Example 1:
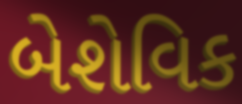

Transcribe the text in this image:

બેશેવિક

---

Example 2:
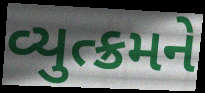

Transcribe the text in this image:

વ્યુત્ક્રમને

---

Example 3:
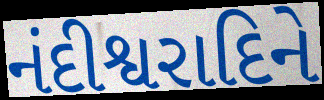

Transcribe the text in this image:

નંદીશ્વરાદિને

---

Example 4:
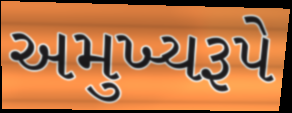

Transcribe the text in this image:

અમુખ્યરૂપે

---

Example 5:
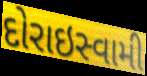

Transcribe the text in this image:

દોરાઇસ્વામી